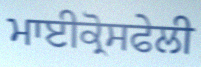
ਮਾਈਕ੍ਰੋਸਫੇਲੀ